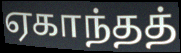
ஏகாந்தத்